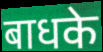
बाधके